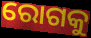
ରୋଗକୁ